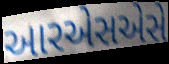
આરએસએસે